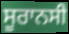
ਸੂਰਾਨਸੀ